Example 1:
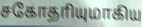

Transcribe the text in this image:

சகோதரியுமாகிய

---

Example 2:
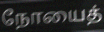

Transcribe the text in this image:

நோயைத்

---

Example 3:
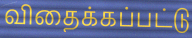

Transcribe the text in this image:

விதைக்கப்பட்டு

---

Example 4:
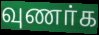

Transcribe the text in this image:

வுணர்க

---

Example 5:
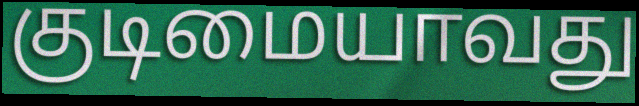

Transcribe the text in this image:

குடிமையாவது